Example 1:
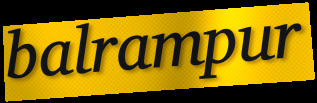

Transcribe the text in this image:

balrampur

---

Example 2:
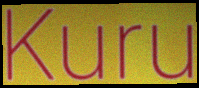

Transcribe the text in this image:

Kuru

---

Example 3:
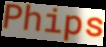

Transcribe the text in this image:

Phips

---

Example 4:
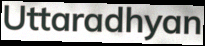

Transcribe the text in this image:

Uttaradhyan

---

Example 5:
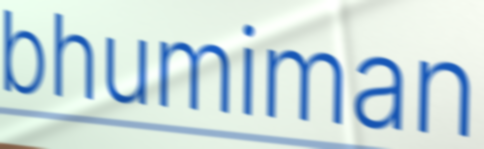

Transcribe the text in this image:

bhumiman